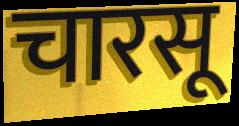
चारसू